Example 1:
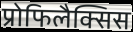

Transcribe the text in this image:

प्रोफिलैक्सिस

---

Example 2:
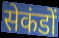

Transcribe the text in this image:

सेकंडों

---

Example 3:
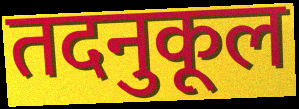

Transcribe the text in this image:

तदनुकूल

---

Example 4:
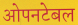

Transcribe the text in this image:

ओपनटेबल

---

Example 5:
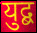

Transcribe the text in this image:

युद्ब